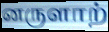
னருளாற்